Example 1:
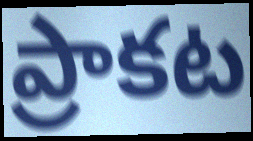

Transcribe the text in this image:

ప్రాకట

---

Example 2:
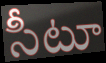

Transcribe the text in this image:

సీటూ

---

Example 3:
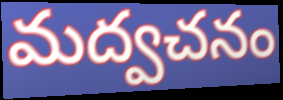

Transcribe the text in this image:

మద్వచనం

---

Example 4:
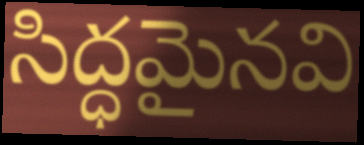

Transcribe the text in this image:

సిద్ధమైనవి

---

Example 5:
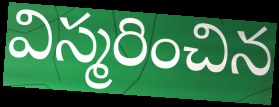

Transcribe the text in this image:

విస్మరించిన